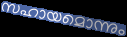
സഹായമൊന്നും